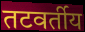
तटवर्तीय